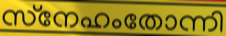
സ്‌നേഹംതോന്നി